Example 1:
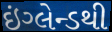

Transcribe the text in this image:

ઇંગ્લેન્ડથી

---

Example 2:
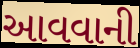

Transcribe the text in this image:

આવવાની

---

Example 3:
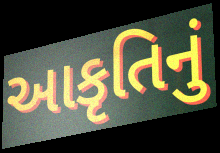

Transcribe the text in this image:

આકૃતિનું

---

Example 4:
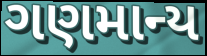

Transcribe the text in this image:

ગણમાન્ય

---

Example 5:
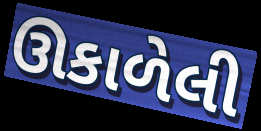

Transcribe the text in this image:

ઊકાળેલી